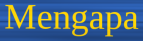
Mengapa